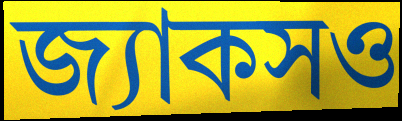
জ্যাকসও